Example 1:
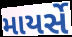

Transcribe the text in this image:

માયર્સે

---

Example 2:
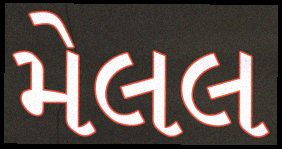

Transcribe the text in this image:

મેલલ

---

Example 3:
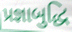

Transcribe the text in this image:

પ્રજ્ઞાબુદ્ધિ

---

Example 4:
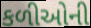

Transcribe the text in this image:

કળીઓની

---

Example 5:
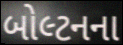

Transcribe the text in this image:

બોલ્ટનના